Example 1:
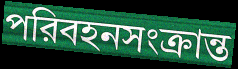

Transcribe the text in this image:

পরিবহনসংক্রান্ত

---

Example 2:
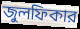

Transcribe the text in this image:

জুলফিকার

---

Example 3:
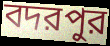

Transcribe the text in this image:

বদরপুর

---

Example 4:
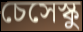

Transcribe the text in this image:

চেসেস্কু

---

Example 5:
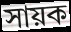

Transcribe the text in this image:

সায়ক